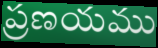
ప్రణయము